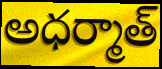
అధర్మాత్